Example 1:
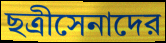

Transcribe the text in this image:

ছত্রীসেনাদের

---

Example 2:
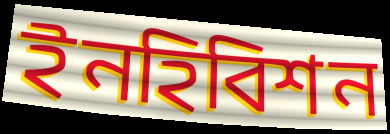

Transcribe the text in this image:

ইনহিবিশন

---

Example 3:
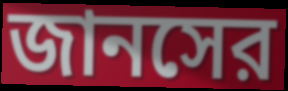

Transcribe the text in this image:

জানসের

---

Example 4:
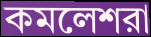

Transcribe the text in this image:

কমলেশরা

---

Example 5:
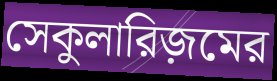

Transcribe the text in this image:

সেকুলারিজ়মের